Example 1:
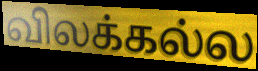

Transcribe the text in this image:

விலக்கல்ல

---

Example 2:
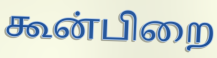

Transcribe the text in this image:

கூன்பிறை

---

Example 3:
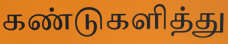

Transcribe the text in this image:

கண்டுகளித்து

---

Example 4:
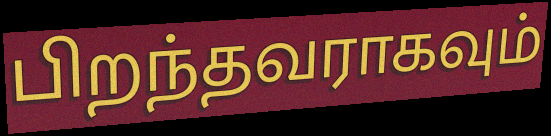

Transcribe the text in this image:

பிறந்தவராகவும்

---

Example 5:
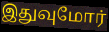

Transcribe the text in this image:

இதுவுமோர்